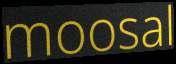
moosal